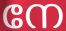
നേ